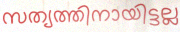
സത്യത്തിനായിട്ടല്ല